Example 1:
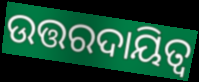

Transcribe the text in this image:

ଉତ୍ତରଦାୟିତ୍ଵ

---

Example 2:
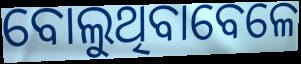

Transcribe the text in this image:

ବୋଲୁଥିବାବେଳେ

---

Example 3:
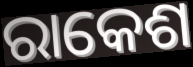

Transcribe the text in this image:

ରାକେଶ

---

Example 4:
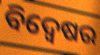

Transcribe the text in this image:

ବିଦ୍ବେଷର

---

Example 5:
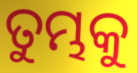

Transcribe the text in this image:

ତୁମ୍ଭକୁ